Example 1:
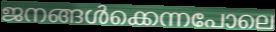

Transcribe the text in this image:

ജനങ്ങൾക്കെന്നപോലെ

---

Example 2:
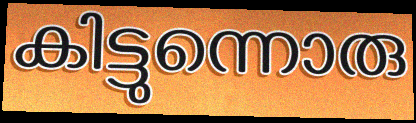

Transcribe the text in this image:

കിട്ടുന്നൊരു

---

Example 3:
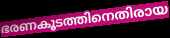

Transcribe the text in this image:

ഭരണകൂടത്തിനെതിരായ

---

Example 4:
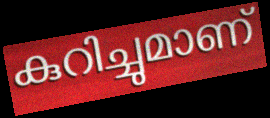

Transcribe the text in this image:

കുറിച്ചുമാണ്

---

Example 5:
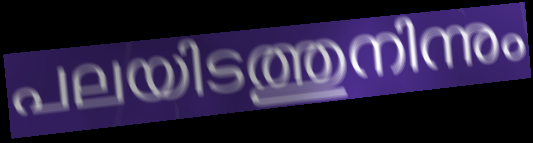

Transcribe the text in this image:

പലയിടത്തുനിന്നും